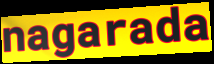
nagarada